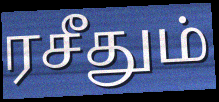
ரசீதும்